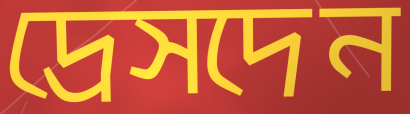
দ্রেসদেন